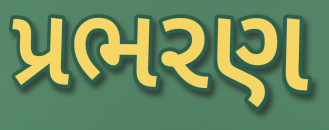
પ્રભરણ